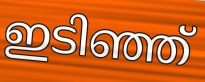
ഇടിഞ്ഞ്